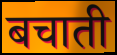
बचाती